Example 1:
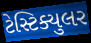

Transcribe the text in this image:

ટેસ્ટિક્યુલર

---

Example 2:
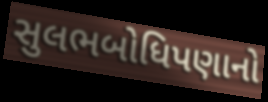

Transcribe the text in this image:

સુલભબોધિપણાનો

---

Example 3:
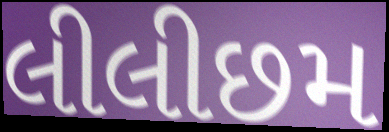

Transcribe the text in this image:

લીલીછમ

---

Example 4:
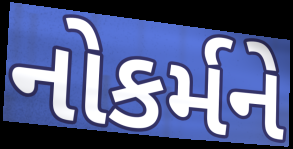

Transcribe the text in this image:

નોકર્મને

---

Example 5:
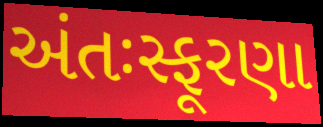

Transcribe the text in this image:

અંતઃસ્ફૂરણા